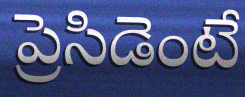
ప్రెసిడెంటే